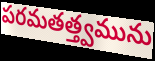
పరమతత్త్వమును